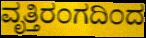
ವೃತ್ತಿರಂಗದಿಂದ